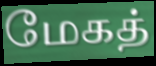
மேகத்